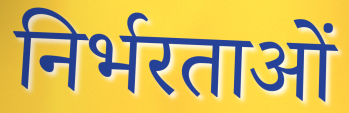
निर्भरताओं